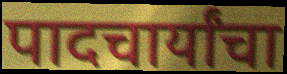
पादचार्यांचा